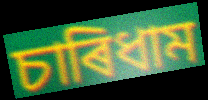
চাৰিধাম